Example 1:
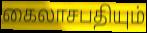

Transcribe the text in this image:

கைலாசபதியும்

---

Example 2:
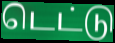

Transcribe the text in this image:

டெட்டு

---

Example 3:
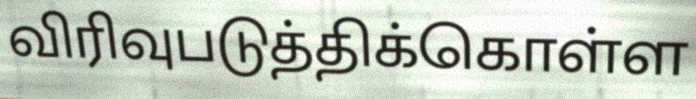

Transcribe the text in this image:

விரிவுபடுத்திக்கொள்ள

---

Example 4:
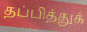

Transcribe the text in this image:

தப்பித்துக்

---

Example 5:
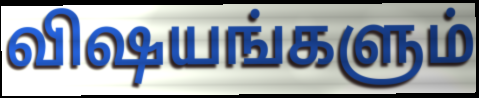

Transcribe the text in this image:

விஷயங்களும்